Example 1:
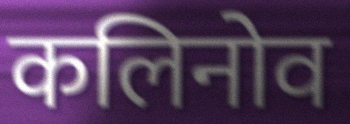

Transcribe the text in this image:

कलिनोव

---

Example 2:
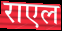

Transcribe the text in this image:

राएल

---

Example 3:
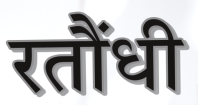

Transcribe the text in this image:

रतौंधी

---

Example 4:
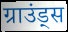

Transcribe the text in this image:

ग्राउंड्स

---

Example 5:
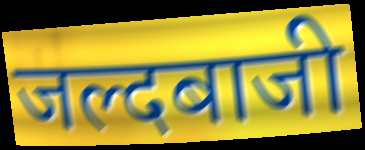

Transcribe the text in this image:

जल्दबाजी